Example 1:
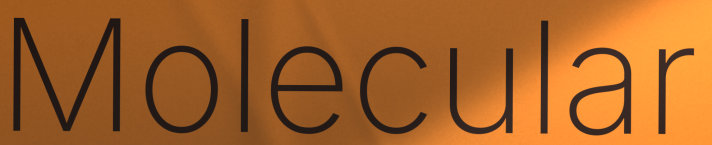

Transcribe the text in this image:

Molecular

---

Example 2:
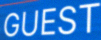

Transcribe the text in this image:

GUEST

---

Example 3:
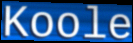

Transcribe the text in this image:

Koole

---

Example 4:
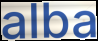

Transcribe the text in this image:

alba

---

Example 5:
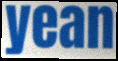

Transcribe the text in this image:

yean